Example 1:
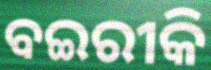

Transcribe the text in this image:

ବଇରୀକି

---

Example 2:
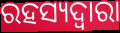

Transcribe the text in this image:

ରହସ୍ୟଦ୍ଵାରା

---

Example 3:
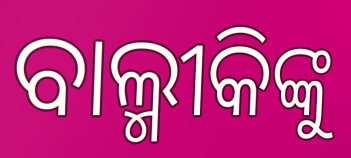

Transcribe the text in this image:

ବାଲ୍ମୀକିଙ୍କୁ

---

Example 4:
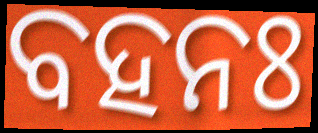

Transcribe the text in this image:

ବହନଃ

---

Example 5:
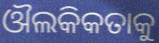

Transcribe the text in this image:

ଔଲକିକତାକୁ